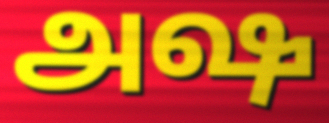
அஷ